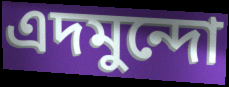
এদমুন্দো